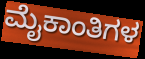
ಮೈಕಾಂತಿಗಳ